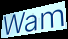
Wam